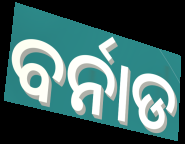
ବର୍ନାଡ